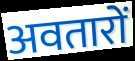
अवतारों